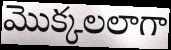
మొక్కలలాగా